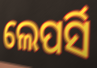
ଲେପର୍ସି